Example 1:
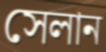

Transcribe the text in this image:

সেলান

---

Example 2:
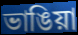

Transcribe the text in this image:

ভাঙিয়া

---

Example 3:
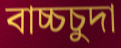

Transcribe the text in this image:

বাচ্চচুদা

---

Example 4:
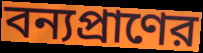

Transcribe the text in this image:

বন্যপ্রাণের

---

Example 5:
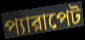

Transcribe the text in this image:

প্যারাপেট